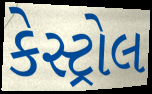
કેસ્ટ્રોલ